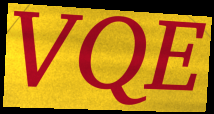
VQE